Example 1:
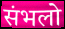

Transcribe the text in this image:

संभलो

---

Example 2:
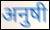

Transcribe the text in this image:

अनुषी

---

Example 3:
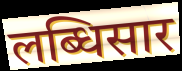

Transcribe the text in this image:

लब्धिसार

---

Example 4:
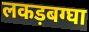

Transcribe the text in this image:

लकड़बग्घा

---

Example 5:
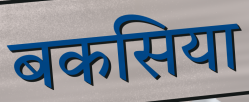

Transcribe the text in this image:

बकसिया